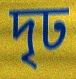
দৃঢ